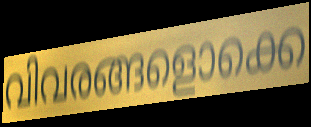
വിവരങ്ങളൊക്കെ